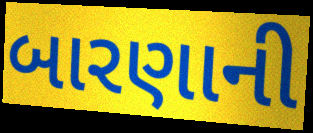
બારણાની